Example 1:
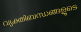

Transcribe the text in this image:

വ്യക്തിബന്ധങ്ങളുടെ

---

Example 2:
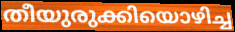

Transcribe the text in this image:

തീയുരുക്കിയൊഴിച്ച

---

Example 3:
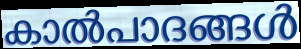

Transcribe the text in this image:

കാൽപാദങ്ങൾ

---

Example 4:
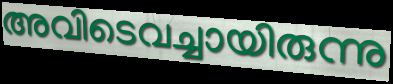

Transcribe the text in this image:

അവിടെവച്ചായിരുന്നു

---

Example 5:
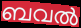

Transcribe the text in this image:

ബവൽ